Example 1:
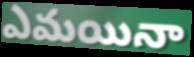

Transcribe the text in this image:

ఎమయినా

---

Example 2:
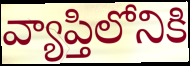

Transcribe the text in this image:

వ్యాప్తిలోనికి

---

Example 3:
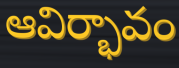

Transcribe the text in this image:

ఆవిర్భావం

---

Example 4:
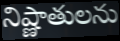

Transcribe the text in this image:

నిష్ణాతులను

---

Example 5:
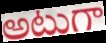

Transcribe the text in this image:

అటుగా